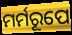
ମର୍ମରୂପେ